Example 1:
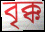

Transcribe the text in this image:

বৃক্ক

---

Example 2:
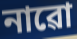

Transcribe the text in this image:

নাৱো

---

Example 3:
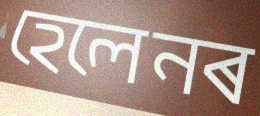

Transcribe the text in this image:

হেলেনৰ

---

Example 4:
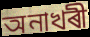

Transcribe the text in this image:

অনাখৰী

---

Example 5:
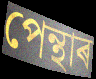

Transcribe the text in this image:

পেন্থাৰ